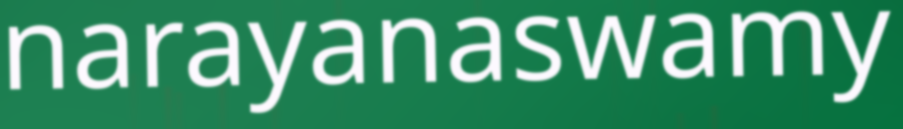
narayanaswamy